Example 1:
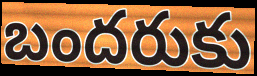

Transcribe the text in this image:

బందరుకు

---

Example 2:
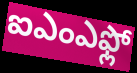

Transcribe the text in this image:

ఐఎంఎఫ్లో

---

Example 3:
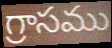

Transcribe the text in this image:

గ్రాసము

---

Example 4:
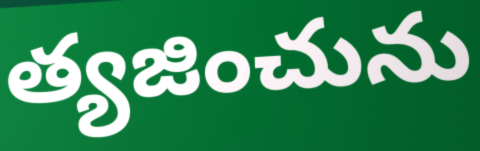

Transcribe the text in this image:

త్యజించును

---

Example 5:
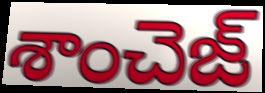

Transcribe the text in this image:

శాంచెజ్